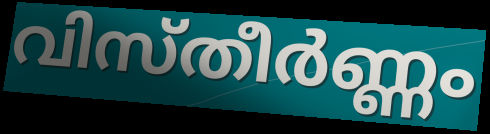
വിസ്തീർണ്ണം